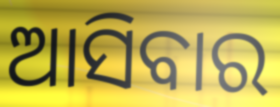
ଆସିବାର